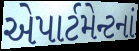
એપાર્ટમેન્ટનાં